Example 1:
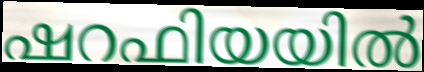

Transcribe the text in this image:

ഷറഫിയയിൽ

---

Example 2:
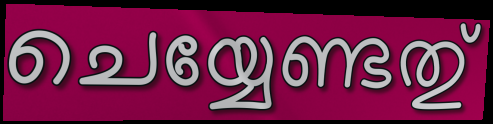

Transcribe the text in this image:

ചെയ്യേണ്ടതു്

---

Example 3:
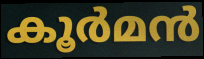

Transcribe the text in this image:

കൂർമൻ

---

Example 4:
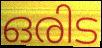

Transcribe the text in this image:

ഒരിട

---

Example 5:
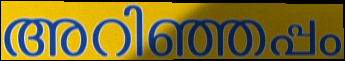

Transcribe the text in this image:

അറിഞ്ഞപ്പം